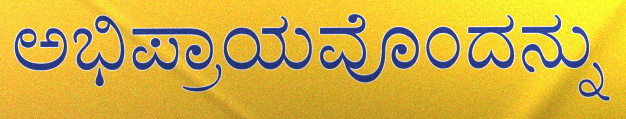
ಅಭಿಪ್ರಾಯವೊಂದನ್ನು